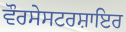
ਵੌਰਸੇਸਟਰਸ਼ਾਇਰ